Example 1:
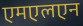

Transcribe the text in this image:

एमएलएन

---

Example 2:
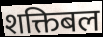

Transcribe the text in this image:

शक्तिबल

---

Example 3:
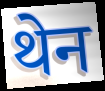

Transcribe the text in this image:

थेन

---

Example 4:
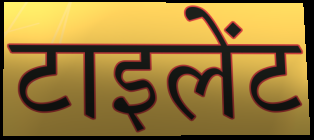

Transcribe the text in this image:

टाइलेंट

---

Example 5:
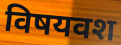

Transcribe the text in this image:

विषयवश